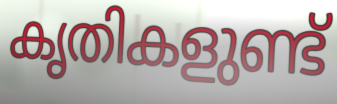
കൃതികളുണ്ട്